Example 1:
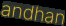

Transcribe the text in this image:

andhan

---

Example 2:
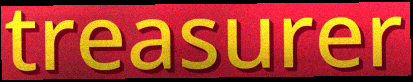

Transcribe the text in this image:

treasurer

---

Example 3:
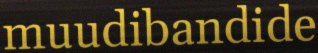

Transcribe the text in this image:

muudibandide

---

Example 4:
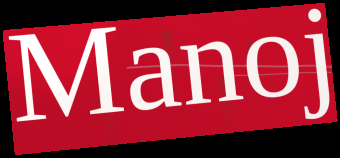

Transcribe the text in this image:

Manoj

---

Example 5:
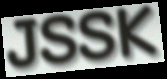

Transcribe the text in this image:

JSSK